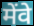
मेंवे